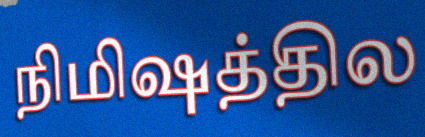
நிமிஷத்தில